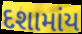
દશામાંય